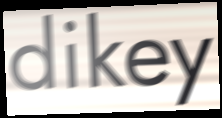
dikey